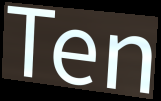
Ten